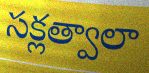
సక్లత్వాలా